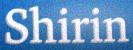
Shirin